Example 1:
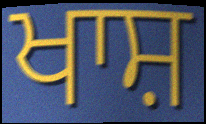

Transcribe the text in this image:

ਖਾਸ਼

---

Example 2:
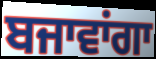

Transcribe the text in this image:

ਬਜਾਵਾਂਗਾ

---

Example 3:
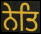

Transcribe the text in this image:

ਨੇਤਿ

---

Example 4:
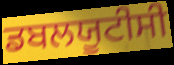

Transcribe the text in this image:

ਡਬਲਯੂਟੀਸੀ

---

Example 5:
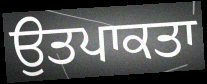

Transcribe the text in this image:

ਉਤਪਾਕਤਾ